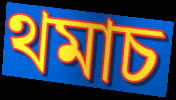
থমাচ